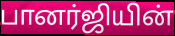
பானர்ஜியின்